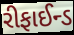
રીફાઈન્ડ